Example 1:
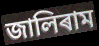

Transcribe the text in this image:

জালিৰাম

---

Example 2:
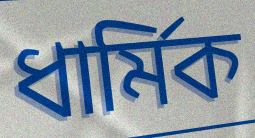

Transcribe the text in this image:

ধাৰ্মিক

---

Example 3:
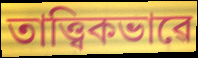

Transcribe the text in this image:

তাত্ত্বিকভাৱে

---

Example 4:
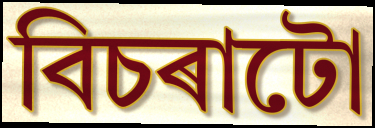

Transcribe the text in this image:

বিচৰাটো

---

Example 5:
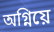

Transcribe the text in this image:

অগ্নিয়ে